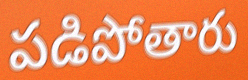
పడిపోతారు